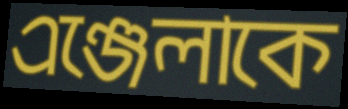
এঞ্জেলাকে